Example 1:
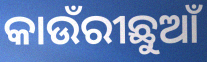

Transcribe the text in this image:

କାଉଁରୀଛୁଆଁ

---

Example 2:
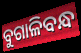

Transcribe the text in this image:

ବୁଗାଳିବନ୍ଧ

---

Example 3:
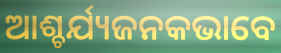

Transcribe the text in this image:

ଆଶ୍ଚର୍ଯ୍ୟଜନକଭାବେ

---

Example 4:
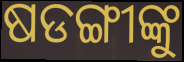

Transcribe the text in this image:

ଷଡଙ୍ଗୀଙ୍କୁ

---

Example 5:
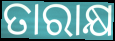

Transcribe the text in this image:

ତାରାକ୍ଷ